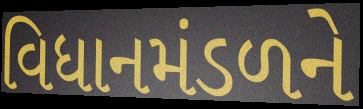
વિધાનમંડળને